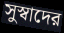
সুস্বাদের